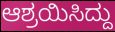
ಆಶ್ರಯಿಸಿದ್ದು